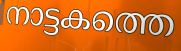
നാട്ടകത്തെ